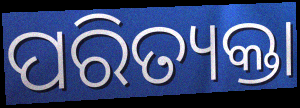
ପରିତ୍ୟକ୍ତା